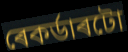
ৰেকৰ্ডাৰটো